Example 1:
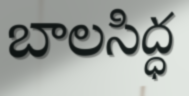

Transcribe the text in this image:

బాలసిద్ధ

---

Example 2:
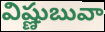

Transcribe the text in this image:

విష్ణుబువా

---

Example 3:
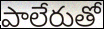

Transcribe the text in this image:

పాలేరుతో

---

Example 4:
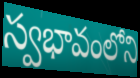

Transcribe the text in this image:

స్వభావంలోని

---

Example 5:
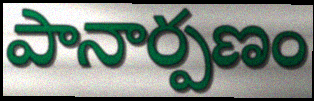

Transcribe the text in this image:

పానార్పణం